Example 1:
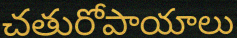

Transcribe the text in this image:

చతురోపాయాలు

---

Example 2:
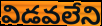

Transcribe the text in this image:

విడవలేని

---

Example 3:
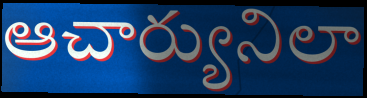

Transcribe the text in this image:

ఆచార్యునిలా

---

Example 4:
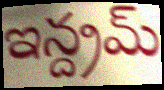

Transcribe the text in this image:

ఇన్ద్రమ్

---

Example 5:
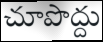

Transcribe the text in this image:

చూపొద్దు